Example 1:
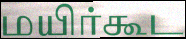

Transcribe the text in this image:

மயிர்கூட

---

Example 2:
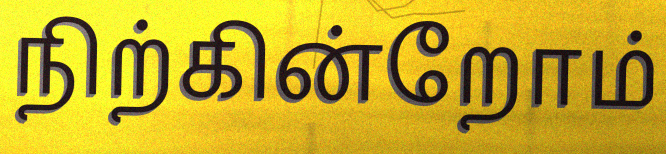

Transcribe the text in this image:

நிற்கின்றோம்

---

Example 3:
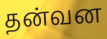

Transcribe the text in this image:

தன்வன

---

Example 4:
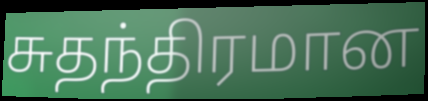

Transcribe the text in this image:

சுதந்திரமான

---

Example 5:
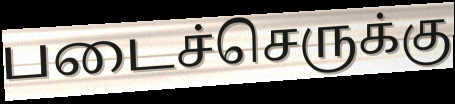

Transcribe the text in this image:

படைச்செருக்கு